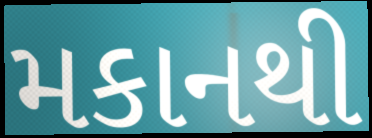
મકાનથી